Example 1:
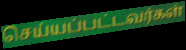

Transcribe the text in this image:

செய்யப்பட்டவர்கள்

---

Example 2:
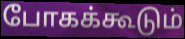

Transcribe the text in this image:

போகக்கூடும்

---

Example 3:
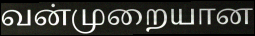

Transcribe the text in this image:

வன்முறையான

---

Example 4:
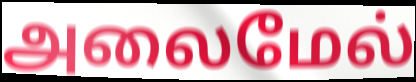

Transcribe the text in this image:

அலைமேல்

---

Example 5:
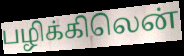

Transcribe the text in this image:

பழிக்கிலென்